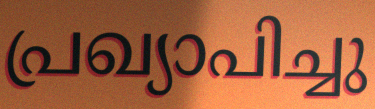
പ്രഖ്യാപിച്ചു